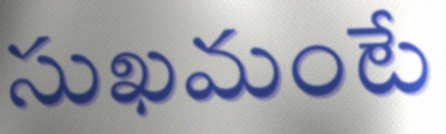
సుఖమంటే